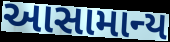
આસામાન્ય